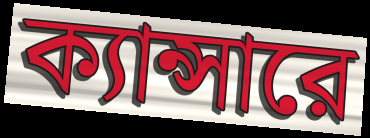
ক্যান্সারে